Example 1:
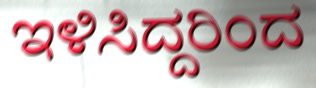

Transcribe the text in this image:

ಇಳಿಸಿದ್ದರಿಂದ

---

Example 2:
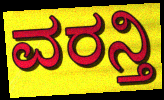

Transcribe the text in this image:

ವರನ್ತಿ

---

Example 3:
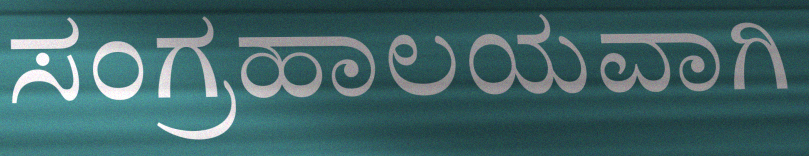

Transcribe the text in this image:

ಸಂಗ್ರಹಾಲಯವಾಗಿ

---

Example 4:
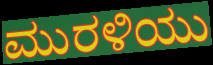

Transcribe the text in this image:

ಮುರಳಿಯು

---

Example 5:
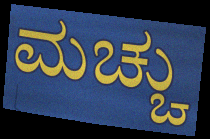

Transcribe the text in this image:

ಮಚ್ಚು